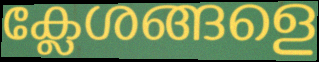
ക്ലേശങ്ങളെ